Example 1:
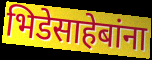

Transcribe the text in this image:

भिडेसाहेबांना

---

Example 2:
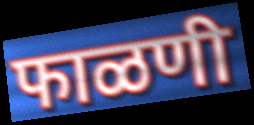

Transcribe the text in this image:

फाळणी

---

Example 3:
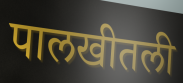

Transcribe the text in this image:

पालखीतली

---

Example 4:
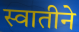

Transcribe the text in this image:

स्वातीने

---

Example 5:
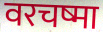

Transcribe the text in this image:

वरचष्मा